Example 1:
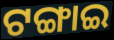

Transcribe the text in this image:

ଟଙ୍ଗାଇ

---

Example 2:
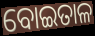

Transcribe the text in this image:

ବୋଇତାଳ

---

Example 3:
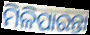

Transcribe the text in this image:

ମିଳିପାରନ୍ତା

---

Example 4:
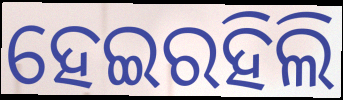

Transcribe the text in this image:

ହେଇରହିଲି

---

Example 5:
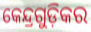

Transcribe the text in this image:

କେନ୍ଦ୍ରଗୁଡ଼ିକର